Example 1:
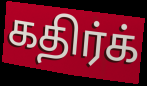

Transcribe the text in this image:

கதிர்க்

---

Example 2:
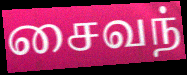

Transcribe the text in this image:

சைவந்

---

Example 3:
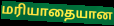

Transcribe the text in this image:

மரியாதையான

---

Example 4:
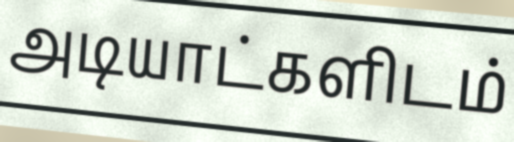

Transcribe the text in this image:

அடியாட்களிடம்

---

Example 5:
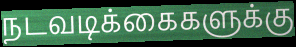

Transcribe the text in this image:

நடவடிக்கைகளுக்கு